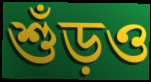
শুঁড়ও